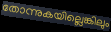
തോന്നുകയില്ലെങ്കിലും